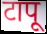
टापू